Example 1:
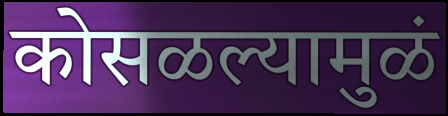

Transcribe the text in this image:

कोसळल्यामुळं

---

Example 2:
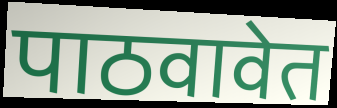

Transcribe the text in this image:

पाठवावेत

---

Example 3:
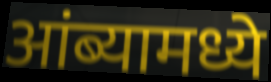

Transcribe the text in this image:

आंब्यामध्ये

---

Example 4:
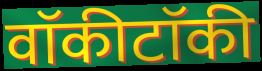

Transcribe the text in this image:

वॉकीटॉकी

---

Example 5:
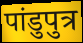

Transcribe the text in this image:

पांडुपुत्र